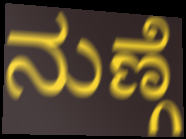
ನುಣ್ಗೆ